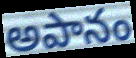
అపానం